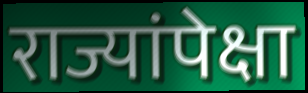
राज्यांपेक्षा